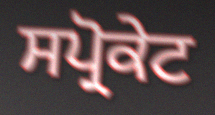
ਸਪ੍ਰੋਕੇਟ